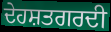
ਦੇਹਸ਼ਤਗਰਦੀ